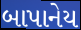
બાપાનેય